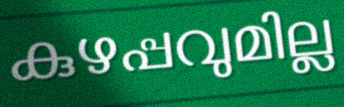
കുഴപ്പവുമില്ല